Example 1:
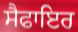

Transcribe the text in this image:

ਸੈਫਾਇਰ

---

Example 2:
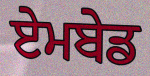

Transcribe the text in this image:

ਏਮਬੇਡ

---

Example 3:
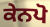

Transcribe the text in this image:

ਕੇਨਪੋ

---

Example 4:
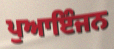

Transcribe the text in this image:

ਪੁਆਇੰਜਨ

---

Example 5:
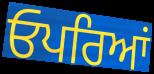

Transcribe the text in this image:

ਓਪਰਿਆਂ